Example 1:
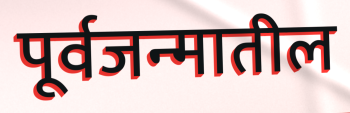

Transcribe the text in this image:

पूर्वजन्मातील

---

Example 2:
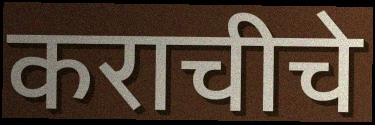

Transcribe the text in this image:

कराचीचे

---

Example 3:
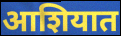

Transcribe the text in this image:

आशियात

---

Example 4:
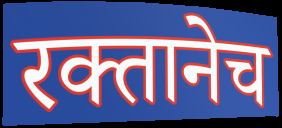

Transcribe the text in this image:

रक्तानेच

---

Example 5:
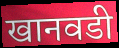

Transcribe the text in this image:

खानवडी